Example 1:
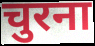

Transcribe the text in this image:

चुरना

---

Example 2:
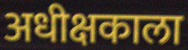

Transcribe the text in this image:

अधीक्षकाला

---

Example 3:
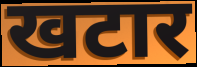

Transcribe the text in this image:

खटार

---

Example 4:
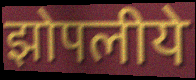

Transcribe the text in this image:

झोपलीये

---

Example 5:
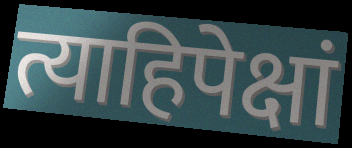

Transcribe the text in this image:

त्याहिपेक्षां